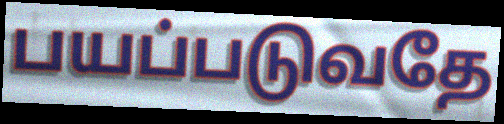
பயப்படுவதே